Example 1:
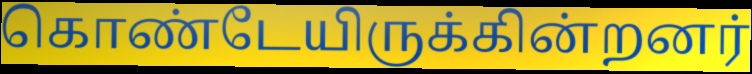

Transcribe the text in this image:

கொண்டேயிருக்கின்றனர்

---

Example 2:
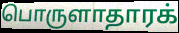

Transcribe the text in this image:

பொருளாதாரக்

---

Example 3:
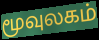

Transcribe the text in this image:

மூவுலகம்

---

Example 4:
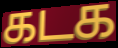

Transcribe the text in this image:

கடக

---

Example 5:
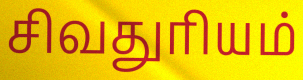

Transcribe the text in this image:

சிவதுரியம்